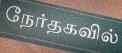
நேர்தகவில்